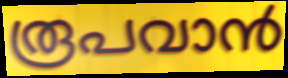
രൂപവാൻ